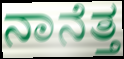
ನಾನೆತ್ತ